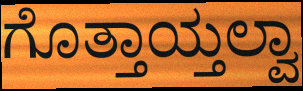
ಗೊತ್ತಾಯ್ತಲ್ವಾ